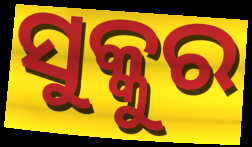
ସୁକ୍କୁର